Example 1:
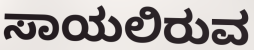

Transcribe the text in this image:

ಸಾಯಲಿರುವ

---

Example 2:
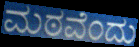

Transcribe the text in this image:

ಮಠವೆಂದು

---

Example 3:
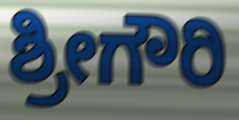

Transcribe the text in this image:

ಶ್ರೀಗೌರಿ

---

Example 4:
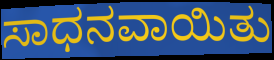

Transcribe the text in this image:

ಸಾಧನವಾಯಿತು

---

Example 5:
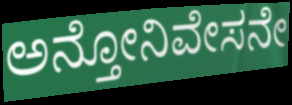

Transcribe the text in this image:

ಅನ್ತೋನಿವೇಸನೇ